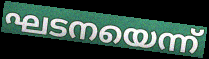
ഘടനയെന്ന്